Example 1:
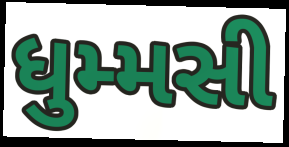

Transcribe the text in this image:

ધુમ્મસી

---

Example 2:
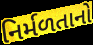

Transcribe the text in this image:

નિર્મળતાનો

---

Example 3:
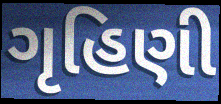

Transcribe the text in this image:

ગૃહિણી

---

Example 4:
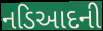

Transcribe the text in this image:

નડિઆદની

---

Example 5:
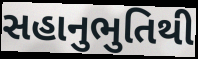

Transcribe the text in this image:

સહાનુભુતિથી